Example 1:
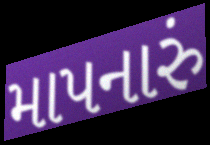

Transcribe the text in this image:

માપનારું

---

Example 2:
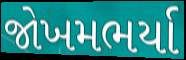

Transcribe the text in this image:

જોખમભર્યા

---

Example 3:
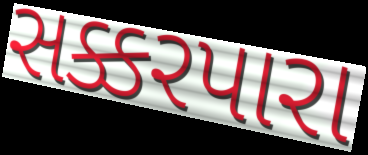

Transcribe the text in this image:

સક્કરપારા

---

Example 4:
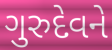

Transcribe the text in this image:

ગુરુદેવને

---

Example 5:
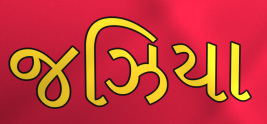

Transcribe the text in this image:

જઝિયા